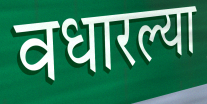
वधारल्या